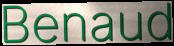
Benaud